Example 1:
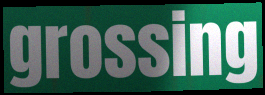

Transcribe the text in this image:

grossing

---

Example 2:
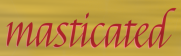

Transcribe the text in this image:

masticated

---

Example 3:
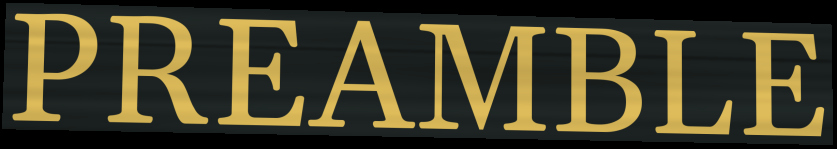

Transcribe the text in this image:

PREAMBLE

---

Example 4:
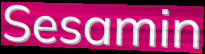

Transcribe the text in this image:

Sesamin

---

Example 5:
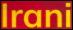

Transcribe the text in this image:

Irani